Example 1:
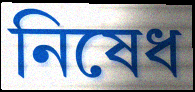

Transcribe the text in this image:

নিষেধ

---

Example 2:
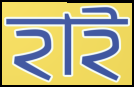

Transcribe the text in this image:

হাই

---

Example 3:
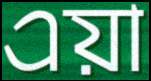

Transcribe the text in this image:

এয়া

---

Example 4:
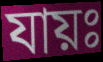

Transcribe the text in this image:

যায়ঃ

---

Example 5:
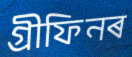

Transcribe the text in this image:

গ্ৰীফিনৰ